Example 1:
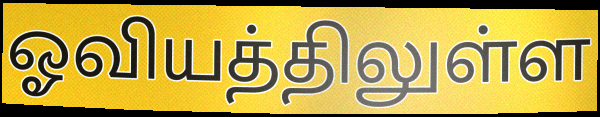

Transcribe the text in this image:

ஓவியத்திலுள்ள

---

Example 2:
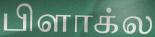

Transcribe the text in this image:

பிளாக்ல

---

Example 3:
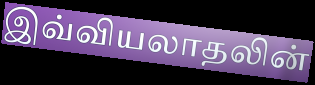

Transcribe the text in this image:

இவ்வியலாதலின்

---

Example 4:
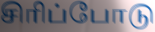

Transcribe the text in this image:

சிரிப்போடு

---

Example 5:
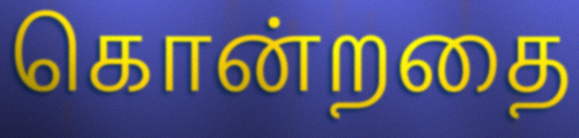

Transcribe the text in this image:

கொன்றதை